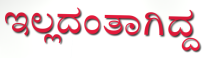
ಇಲ್ಲದಂತಾಗಿದ್ದ